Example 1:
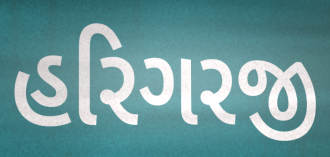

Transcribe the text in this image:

હરિગરજી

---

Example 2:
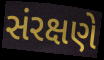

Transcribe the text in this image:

સંરક્ષણે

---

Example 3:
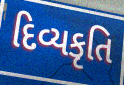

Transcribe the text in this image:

દિવ્યકૃતિ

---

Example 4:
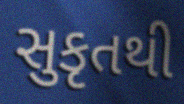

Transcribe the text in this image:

સુકૃતથી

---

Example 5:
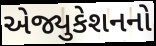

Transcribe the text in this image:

એજ્યુકેશનનો